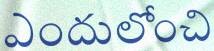
ఎందులోంచి